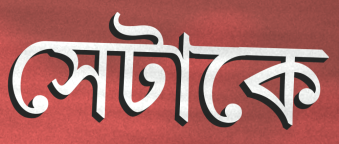
সেটাকে